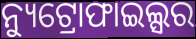
ନ୍ୟୁଟ୍ରୋଫାଇଲ୍ସର